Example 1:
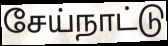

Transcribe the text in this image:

சேய்நாட்டு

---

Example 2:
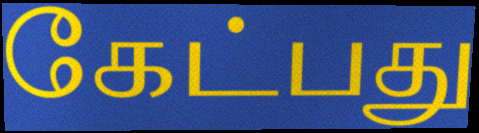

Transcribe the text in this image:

கேட்பது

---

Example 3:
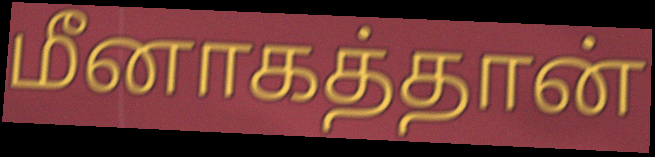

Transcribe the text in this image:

மீனாகத்தான்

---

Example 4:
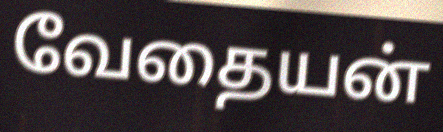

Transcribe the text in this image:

வேதையன்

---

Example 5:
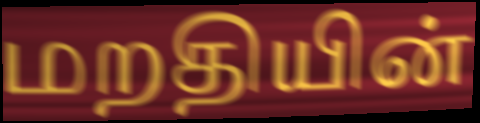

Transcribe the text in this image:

மறதியின்